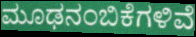
ಮೂಢನಂಬಿಕೆಗಳಿವೆ